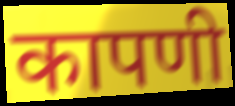
कापणी